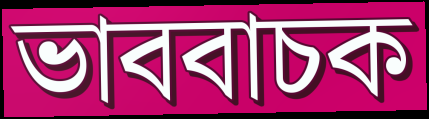
ভাববাচক